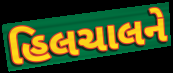
હિલચાલને